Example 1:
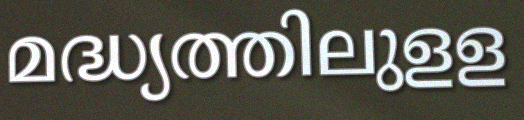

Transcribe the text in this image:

മദ്ധ്യത്തിലുളള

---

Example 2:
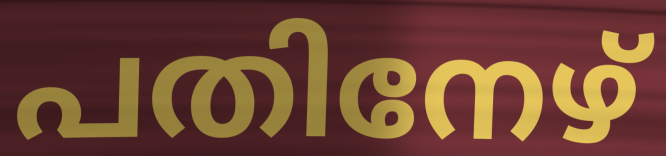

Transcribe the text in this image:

പതിനേഴ്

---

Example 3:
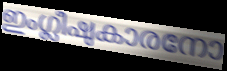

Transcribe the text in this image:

ഇംഗ്ലീഷുകാരനോ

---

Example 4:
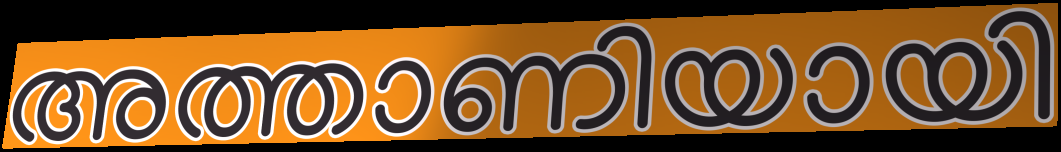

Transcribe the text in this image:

അത്താണിയായി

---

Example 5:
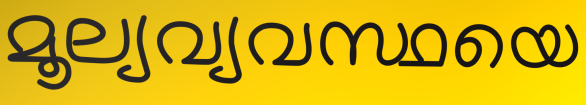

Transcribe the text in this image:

മൂല്യവ്യവസ്ഥയെ